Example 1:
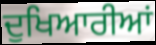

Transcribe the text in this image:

ਦੁਖਿਆਰੀਆਂ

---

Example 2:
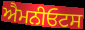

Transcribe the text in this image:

ਐਮਨੀਓਟਸ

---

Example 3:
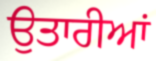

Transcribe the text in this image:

ਉਤਾਰੀਆਂ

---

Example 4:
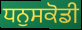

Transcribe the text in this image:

ਧਨੁਸਕੋਡੀ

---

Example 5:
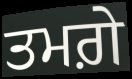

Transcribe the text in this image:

ਤਮਗ਼ੇ